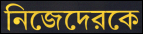
নিজেদেরকে